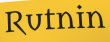
Rutnin